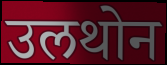
उलथोन